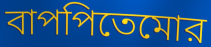
বাপপিতেমোর